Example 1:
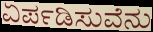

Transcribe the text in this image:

ಏರ್ಪಡಿಸುವೆನು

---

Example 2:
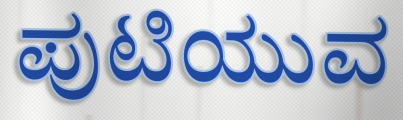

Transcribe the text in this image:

ಪುಟಿಯುವ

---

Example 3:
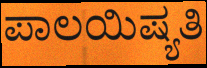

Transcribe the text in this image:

ಪಾಲಯಿಷ್ಯತಿ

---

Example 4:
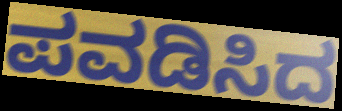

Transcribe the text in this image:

ಪವಡಿಸಿದ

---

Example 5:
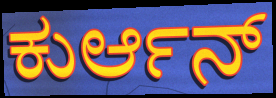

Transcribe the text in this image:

ಕುರ್ಆನ್